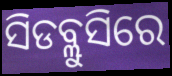
ସିଡବ୍ଲୁସିରେ